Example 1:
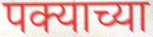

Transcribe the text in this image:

पक्याच्या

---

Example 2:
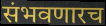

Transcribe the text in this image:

संभवणारच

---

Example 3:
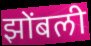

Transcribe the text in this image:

झोंबली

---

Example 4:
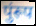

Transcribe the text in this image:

पुंरूप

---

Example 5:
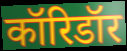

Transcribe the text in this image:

कॉरिडॉर